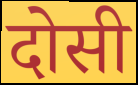
दोसी